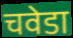
चवेडा